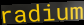
radium